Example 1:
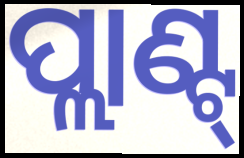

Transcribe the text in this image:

ପ୍ଲାଣ୍ଟ୍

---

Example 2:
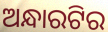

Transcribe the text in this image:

ଅନ୍ଧାରଟିର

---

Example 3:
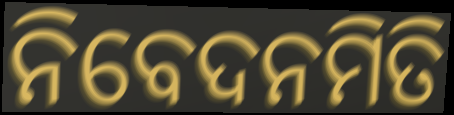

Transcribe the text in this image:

ନିବେଦନମିତି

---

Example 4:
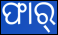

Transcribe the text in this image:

ଫାର୍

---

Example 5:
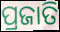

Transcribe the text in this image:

ପ୍ରଜାତି